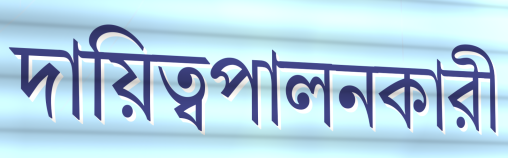
দায়িত্বপালনকারী